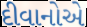
દીવાનોએ